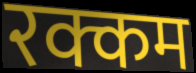
रक्कम